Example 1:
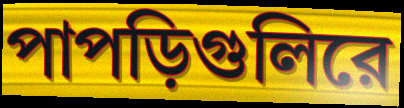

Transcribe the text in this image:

পাপড়িগুলিরে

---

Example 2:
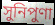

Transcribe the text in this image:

সুনিপুণা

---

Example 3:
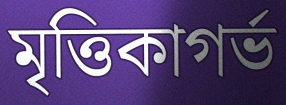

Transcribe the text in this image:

মৃত্তিকাগর্ভ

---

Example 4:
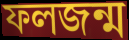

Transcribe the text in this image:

ফলজন্ম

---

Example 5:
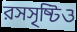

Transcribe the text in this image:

রসসৃষ্টিও